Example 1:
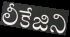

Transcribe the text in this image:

లీకేజిని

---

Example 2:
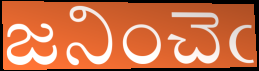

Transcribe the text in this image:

జనించెఁ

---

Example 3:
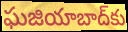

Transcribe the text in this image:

ఘజియాబాద్‌కు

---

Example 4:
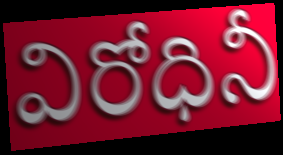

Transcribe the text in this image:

విరోధినీ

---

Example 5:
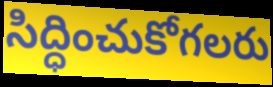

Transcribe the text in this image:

సిద్ధించుకోగలరు